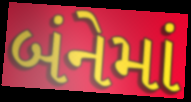
બંનેમાં